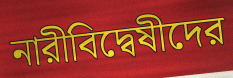
নারীবিদ্বেষীদের